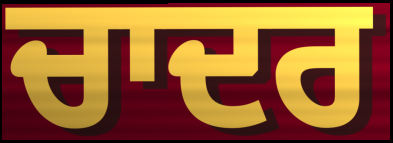
ਚਾਦਰ